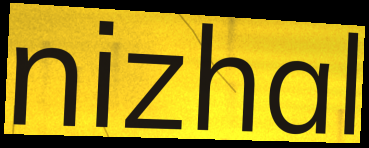
nizhal